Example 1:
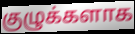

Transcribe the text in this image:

குழுக்களாக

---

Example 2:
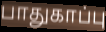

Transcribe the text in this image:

பாதுகாப்பு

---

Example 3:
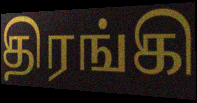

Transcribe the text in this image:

திரங்கி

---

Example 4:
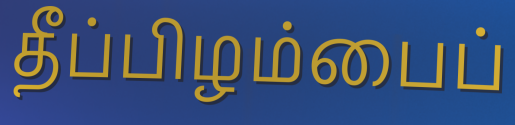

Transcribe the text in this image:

தீப்பிழம்பைப்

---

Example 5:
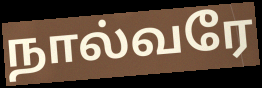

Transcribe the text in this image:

நால்வரே